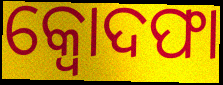
କ୍ବୋଦଫା